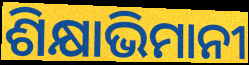
ଶିକ୍ଷାଭିମାନୀ